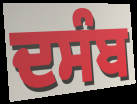
ਦਸੰਬ